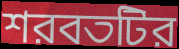
শরবতটির